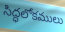
సిద్ధలోకములు